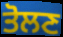
ਤੋਲਣ